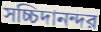
সচ্চিদানন্দর